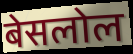
बेसलोल